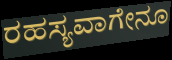
ರಹಸ್ಯವಾಗೇನೂ